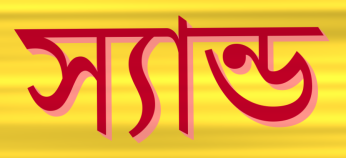
স্যান্ড